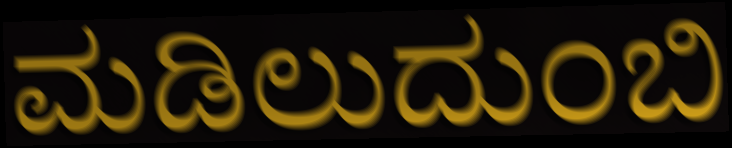
ಮಡಿಲುದುಂಬಿ